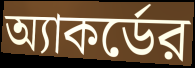
অ্যাকর্ডের